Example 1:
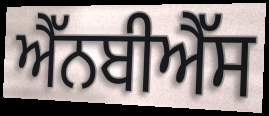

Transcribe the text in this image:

ਐੱਨਬੀਐੱਸ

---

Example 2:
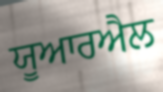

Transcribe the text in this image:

ਯੂਆਰਐਲ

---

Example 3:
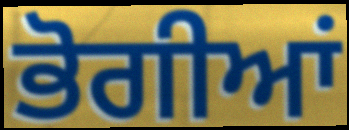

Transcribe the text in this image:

ਭੋਗੀਆਂ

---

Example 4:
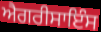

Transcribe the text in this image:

ਐਗਰੀਸਾਇੰਸ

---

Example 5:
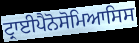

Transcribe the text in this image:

ਟ੍ਰਾਈਪੈਨੋਸੋਮਿਆਸਿਸ